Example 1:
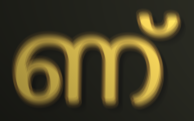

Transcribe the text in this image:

ണ്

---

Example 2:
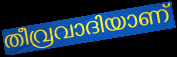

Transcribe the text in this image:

തീവ്രവാദിയാണ്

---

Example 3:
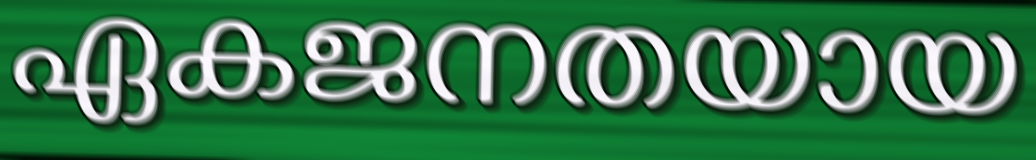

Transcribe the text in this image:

ഏകജനതയായ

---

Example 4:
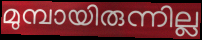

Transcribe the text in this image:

മുമ്പായിരുന്നില്ല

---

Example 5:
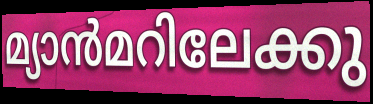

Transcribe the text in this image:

മ്യാൻമറിലേക്കു